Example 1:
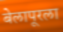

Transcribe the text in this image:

बेलापूरला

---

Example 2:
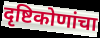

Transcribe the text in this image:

दृष्टिकोणांचा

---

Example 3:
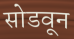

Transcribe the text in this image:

सोडवून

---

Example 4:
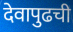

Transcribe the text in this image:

देवापुढची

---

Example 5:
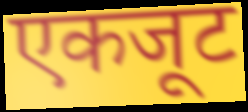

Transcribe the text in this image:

एकजूट